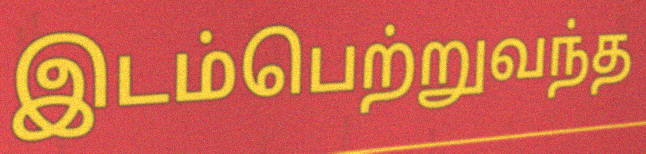
இடம்பெற்றுவந்த